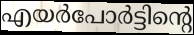
എയർപോർട്ടിന്റെ